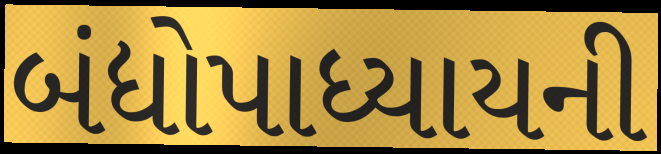
બંદ્યોપાધ્યાયની